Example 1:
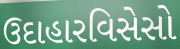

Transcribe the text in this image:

ઉદાહારવિસેસો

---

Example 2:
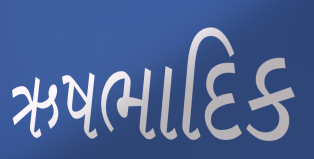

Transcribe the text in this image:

ઋષભાદિક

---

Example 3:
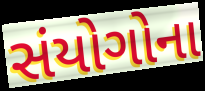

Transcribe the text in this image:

સંયોગોના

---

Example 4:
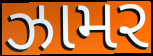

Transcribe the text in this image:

ઝામર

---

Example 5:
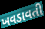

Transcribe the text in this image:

ખવડાવતી